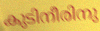
കുടിനീരിനു